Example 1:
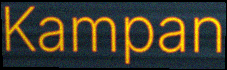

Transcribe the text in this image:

Kampan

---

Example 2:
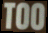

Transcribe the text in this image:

TOO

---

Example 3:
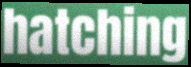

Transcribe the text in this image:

hatching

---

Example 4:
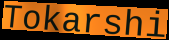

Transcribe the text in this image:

Tokarshi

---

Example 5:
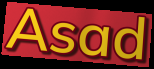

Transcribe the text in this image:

Asad